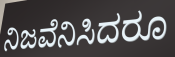
ನಿಜವೆನಿಸಿದರೂ